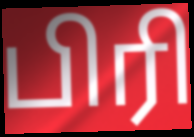
பிரி